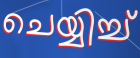
ചെയ്യിച്ച്